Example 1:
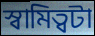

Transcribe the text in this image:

স্বামিত্বটা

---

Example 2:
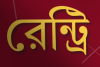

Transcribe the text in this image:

রেন্ট্রি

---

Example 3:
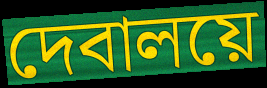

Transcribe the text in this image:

দেবালয়ে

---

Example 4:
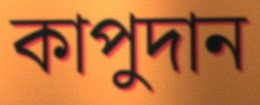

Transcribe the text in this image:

কাপুদান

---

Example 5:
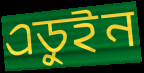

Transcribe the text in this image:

এডুইন